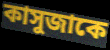
কাসুজাকে